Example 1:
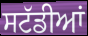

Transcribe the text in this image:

ਸਟੱਡੀਆਂ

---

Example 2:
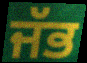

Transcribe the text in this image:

ਜੱਭ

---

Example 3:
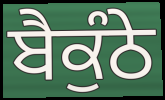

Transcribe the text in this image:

ਬੈਕੁੰਠੇ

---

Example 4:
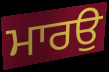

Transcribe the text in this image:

ਮਾਰਉ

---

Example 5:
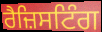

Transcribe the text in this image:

ਰੈਜ਼ਿਸਟਿੰਗ